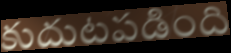
కుదుటపడింది